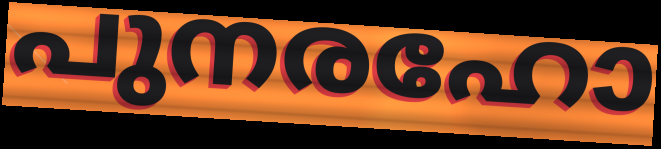
പുനരഹോ